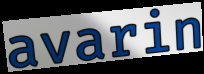
avarin